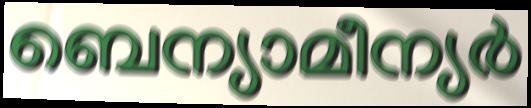
ബെന്യാമീന്യർ